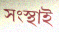
সংস্থাই